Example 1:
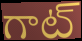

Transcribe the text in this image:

గాట్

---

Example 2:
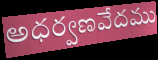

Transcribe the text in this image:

అధర్వణవేదము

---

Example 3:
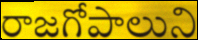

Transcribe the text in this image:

రాజగోపాలుని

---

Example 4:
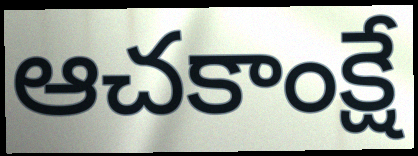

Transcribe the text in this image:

ఆచకాంక్షే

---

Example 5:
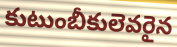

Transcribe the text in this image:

కుటుంబీకులెవరైన